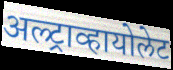
अल्ट्राव्हायोलेट